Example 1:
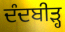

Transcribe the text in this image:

ਦੰਦਬੀੜ੍ਹ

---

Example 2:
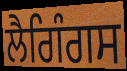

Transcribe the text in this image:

ਲੈਗਿੰਗਸ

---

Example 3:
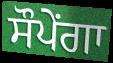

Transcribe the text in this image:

ਸੌਪੇਂਗਾ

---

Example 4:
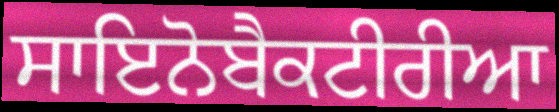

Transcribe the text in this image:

ਸਾਇਨੋਬੈਕਟੀਰੀਆ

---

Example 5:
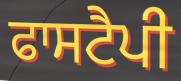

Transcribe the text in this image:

ਫਾਸਟੈਪੀ